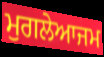
ਮੁਗਲੇਆਜਮ